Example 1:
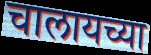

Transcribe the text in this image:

चालायच्या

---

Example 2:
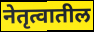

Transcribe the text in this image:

नेतृत्वातील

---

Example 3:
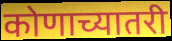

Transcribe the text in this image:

कोणाच्यातरी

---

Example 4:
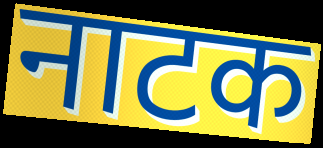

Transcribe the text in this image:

नाटक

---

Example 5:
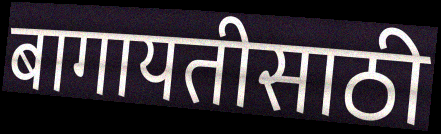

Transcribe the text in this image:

बागायतीसाठी